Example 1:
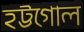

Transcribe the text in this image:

হট্টগোল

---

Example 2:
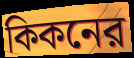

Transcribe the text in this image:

কিকনের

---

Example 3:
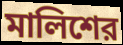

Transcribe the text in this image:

মালিশের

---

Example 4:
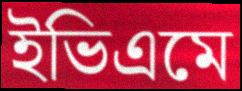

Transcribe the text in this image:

ইভিএমে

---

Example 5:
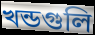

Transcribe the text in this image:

খন্ডগুলি